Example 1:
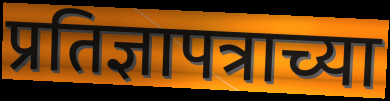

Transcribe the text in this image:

प्रतिज्ञापत्राच्या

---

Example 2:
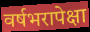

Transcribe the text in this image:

वर्षभरापेक्षा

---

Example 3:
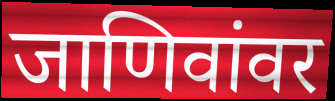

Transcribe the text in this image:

जाणिवांवर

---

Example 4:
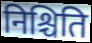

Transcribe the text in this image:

निश्चिति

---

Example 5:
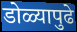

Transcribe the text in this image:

डोळ्यापुढे